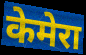
केमेरा